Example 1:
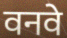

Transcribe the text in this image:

वनवे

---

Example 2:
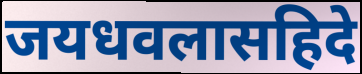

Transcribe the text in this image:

जयधवलासहिदे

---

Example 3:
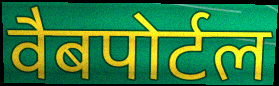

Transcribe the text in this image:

वैबपोर्टल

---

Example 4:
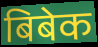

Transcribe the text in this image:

बिबेक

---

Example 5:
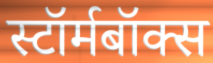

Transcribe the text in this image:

स्टॉर्मबॉक्स